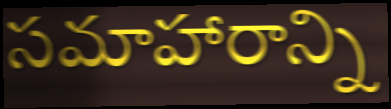
సమాహారాన్ని